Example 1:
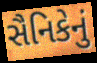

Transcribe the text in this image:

સૈનિકેનું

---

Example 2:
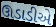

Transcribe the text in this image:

ઊડાડીએ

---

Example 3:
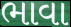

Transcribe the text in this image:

ભાવા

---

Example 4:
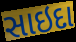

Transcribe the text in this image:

સાઇદા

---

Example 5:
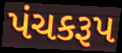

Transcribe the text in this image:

પંચકરૂપ